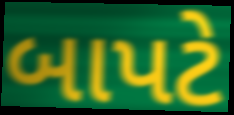
બાપટે